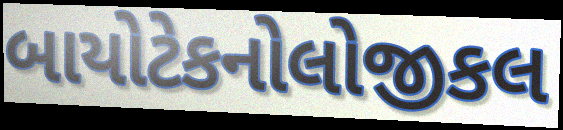
બાયોટેકનોલોજીકલ